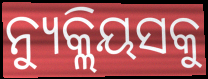
ନ୍ୟୁକ୍ଲିୟସକୁ